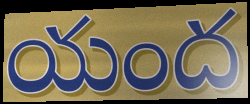
యంద